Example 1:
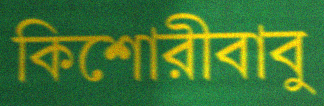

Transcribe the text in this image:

কিশোরীবাবু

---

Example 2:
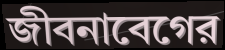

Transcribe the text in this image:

জীবনাবেগের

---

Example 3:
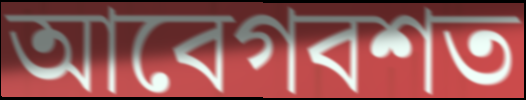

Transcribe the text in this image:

আবেগবশত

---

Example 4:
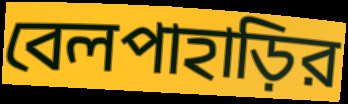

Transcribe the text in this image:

বেলপাহাড়ির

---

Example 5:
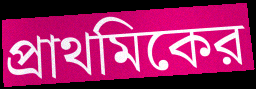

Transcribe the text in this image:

প্রাথমিকের